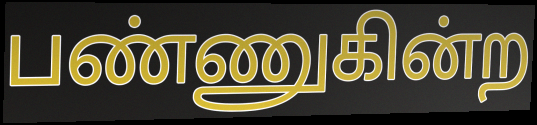
பண்ணுகின்ற